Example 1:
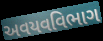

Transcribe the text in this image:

અવયવવિભાગ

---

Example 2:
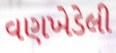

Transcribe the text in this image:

વણખેડેલી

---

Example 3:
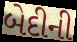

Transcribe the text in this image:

બેદીની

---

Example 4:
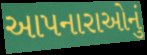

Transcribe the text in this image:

આપનારાઓનું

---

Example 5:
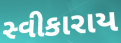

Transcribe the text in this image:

સ્વીકારાય